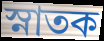
স্নাতক